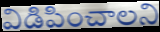
విడిపించాలని